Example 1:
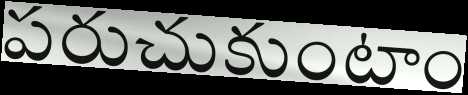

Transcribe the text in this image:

పరుచుకుంటాం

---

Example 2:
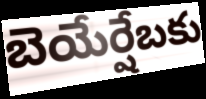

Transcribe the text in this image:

బెయేర్షేబకు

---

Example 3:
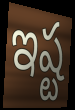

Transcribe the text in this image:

ఇష్ట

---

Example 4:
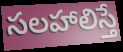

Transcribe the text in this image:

సలహాలిస్తే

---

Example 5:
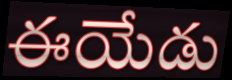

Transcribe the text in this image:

ఈయేడు